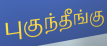
புகுந்தீங்கு